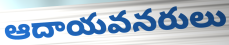
ఆదాయవనరులు